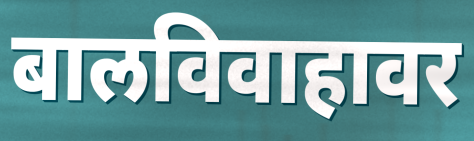
बालविवाहावर